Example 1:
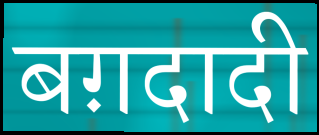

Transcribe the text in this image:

बग़दादी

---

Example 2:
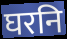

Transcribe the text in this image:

घरनि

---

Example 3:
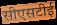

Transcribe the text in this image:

सीएसटीई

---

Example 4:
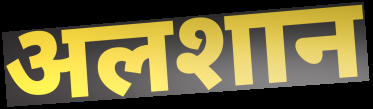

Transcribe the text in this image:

अलशान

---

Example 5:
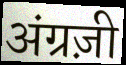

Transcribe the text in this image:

अंग्रज़ी